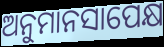
ଅନୁମାନସାପେକ୍ଷ